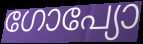
ഗോപ്യോ